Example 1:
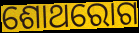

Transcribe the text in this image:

ଶୋଥରୋଗ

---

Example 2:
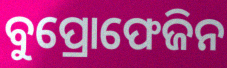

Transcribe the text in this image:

ବୁପ୍ରୋଫେଜିନ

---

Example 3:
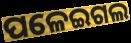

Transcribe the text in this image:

ପଳେଇଗଲ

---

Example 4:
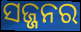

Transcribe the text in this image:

ସଜ୍ଜନର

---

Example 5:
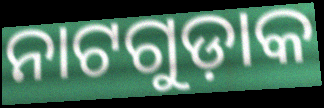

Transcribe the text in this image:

ନାଟଗୁଡ଼ାକ